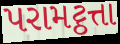
પરામટ્ઠત્તા